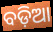
ବଡ଼ିଆ